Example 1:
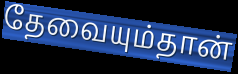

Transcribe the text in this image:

தேவையும்தான்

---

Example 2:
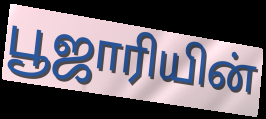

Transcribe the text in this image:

பூஜாரியின்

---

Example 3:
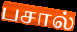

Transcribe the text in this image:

பசால்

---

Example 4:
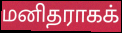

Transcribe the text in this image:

மனிதராகக்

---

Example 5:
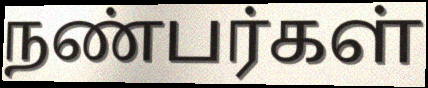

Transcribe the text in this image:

நண்பர்கள்